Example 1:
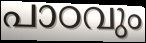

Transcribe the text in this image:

പാഠവും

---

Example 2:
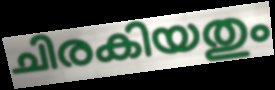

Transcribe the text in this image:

ചിരകിയതും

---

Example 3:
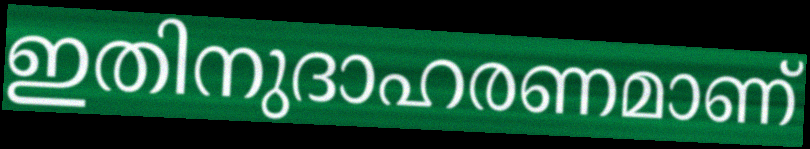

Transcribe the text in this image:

ഇതിനുദാഹരണമാണ്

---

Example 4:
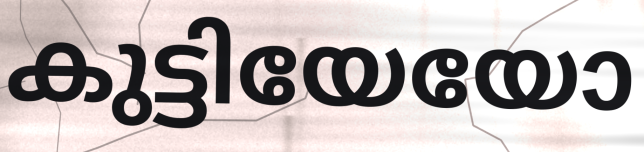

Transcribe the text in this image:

കുട്ടിയേയോ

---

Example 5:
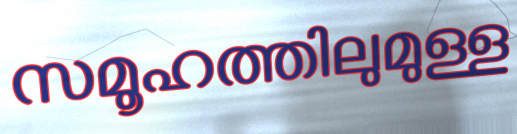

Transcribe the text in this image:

സമൂഹത്തിലുമുള്ള